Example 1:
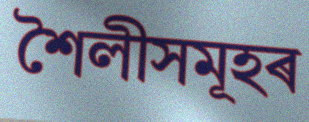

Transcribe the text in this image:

শৈলীসমূহৰ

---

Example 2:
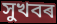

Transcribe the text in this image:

সুখবৰ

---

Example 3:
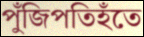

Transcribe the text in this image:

পুঁজিপতিহঁতে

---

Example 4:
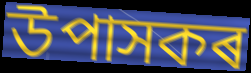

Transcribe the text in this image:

উপাসকৰ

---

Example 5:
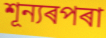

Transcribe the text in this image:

শূন্যৰপৰা